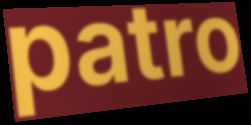
patro